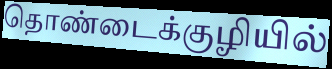
தொண்டைக்குழியில்